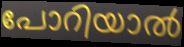
പോറിയാൽ